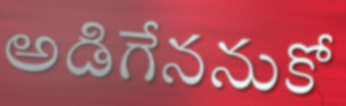
అడిగేననుకో